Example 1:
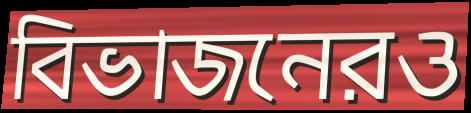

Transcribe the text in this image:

বিভাজনেরও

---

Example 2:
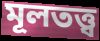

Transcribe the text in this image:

মূলতত্ত্ব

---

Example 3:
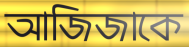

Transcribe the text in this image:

আজিজাকে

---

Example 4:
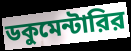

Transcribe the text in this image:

ডকুমেন্টারির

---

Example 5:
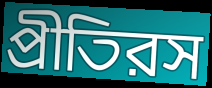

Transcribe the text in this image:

প্রীতিরস